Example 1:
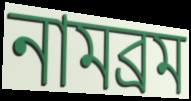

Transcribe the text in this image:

নামব্রম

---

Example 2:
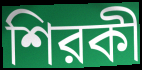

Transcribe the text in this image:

শিরকী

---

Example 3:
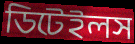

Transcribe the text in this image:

ডিটেইলস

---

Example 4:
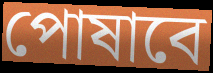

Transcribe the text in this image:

পোষাবে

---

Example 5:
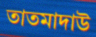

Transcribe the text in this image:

তাতমাদাউ